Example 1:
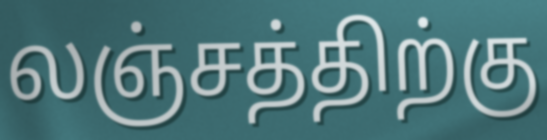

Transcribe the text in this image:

லஞ்சத்திற்கு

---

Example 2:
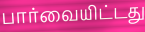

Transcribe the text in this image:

பார்வையிட்டது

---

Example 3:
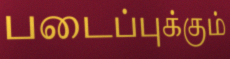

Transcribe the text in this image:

படைப்புக்கும்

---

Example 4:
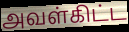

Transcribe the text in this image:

அவள்கிட்ட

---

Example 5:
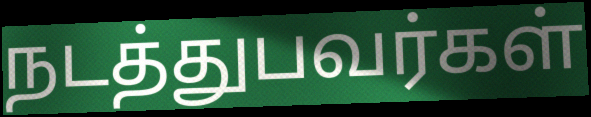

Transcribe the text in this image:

நடத்துபவர்கள்